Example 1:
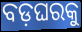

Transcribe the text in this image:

ବଡ଼ଘରକୁ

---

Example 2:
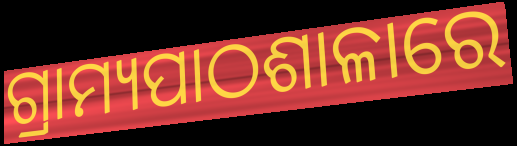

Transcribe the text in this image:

ଗ୍ରାମ୍ୟପାଠଶାଳାରେ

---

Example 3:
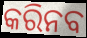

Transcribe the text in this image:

କରିନବ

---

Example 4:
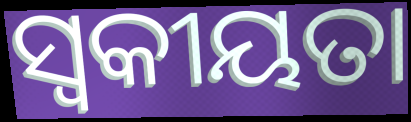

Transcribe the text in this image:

ସ୍ଵକୀୟତା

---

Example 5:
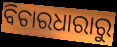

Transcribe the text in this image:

ବିଚାରଧାରାରୁ